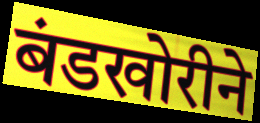
बंडखोरीने